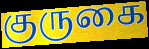
குருகை